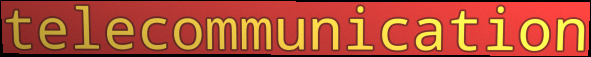
telecommunication